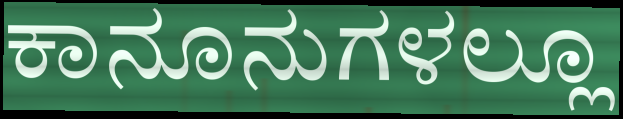
ಕಾನೂನುಗಳಲ್ಲೂ